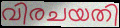
വിരചയതി